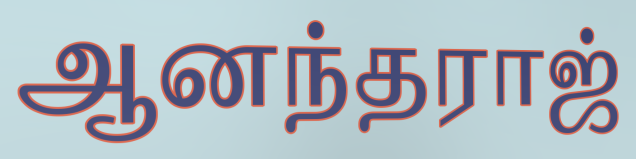
ஆனந்தராஜ்